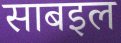
साबइल